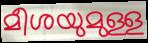
മീശയുമുള്ള